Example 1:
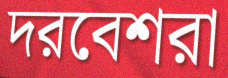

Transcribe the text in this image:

দরবেশরা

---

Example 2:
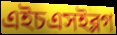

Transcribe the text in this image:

এইচএসইব্লগ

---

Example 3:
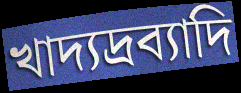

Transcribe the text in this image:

খাদ্যদ্রব্যাদি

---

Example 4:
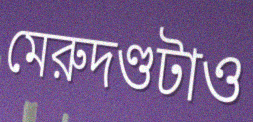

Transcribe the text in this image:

মেরুদণ্ডটাও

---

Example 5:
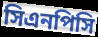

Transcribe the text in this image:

সিএনপিসি